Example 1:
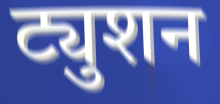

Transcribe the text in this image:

ट्युशन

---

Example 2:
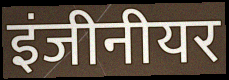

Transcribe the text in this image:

इंजीनीयर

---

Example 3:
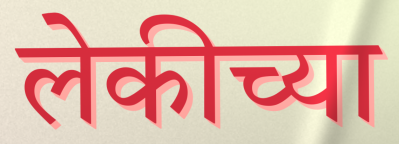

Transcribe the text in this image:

लेकीच्या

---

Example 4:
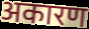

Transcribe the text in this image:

अकारण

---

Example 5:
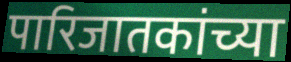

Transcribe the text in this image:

पारिजातकांच्या